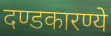
दण्डकारण्ये